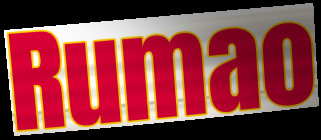
Rumao